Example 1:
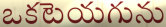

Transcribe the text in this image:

ఒకటెయగును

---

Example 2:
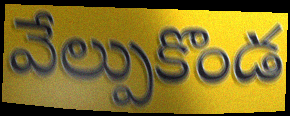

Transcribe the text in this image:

వేల్పుకొండ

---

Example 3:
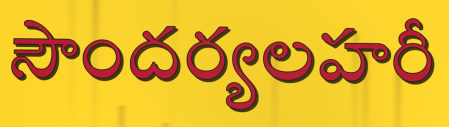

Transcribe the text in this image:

సౌందర్యలహరీ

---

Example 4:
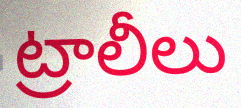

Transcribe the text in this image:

ట్రాలీలు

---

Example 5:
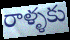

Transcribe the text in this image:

రాళ్ళకు